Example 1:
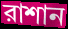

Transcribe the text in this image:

রাশান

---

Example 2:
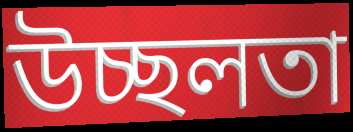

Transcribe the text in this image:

উচ্ছলতা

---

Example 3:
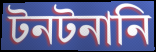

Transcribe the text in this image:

টনটনানি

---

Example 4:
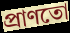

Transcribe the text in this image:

প্রাণতো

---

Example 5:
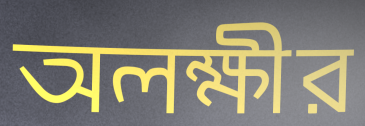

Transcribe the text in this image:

অলক্ষীর